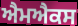
ਐਮਐਕਸ